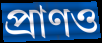
প্রাণও